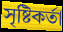
সৃষ্টিকৰ্তা